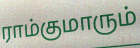
ராம்குமாரும்